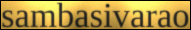
sambasivarao